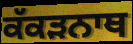
ਕੱਕੜਨਾਥ